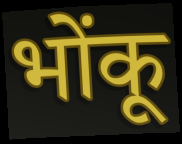
भोंकू